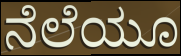
ನೆಲೆಯೂ